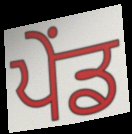
ਪੇਂਡ